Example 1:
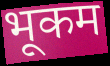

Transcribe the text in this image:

भूकम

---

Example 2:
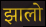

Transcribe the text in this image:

झालो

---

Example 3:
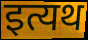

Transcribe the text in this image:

इत्यथ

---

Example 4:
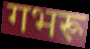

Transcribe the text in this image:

गभरू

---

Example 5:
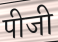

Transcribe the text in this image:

पीजी